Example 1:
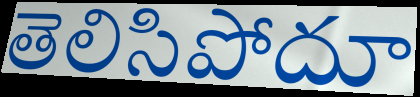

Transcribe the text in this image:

తెలిసిపోదూ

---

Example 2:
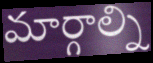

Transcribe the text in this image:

మార్గాల్ని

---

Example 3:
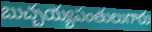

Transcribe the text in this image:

బుచ్చయ్యపంతులుగారు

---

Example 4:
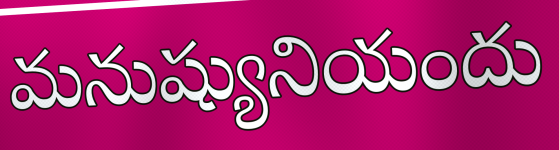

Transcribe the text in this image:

మనుష్యునియందు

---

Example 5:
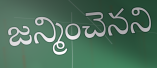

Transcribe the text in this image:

జన్మించెనని